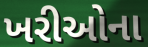
ખરીઓના